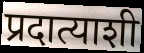
प्रदात्याशी